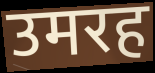
उमरह